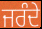
ਜਰੰਦੇ